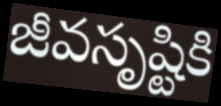
జీవసృష్టికి